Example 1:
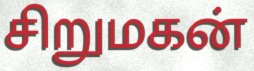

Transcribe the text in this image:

சிறுமகன்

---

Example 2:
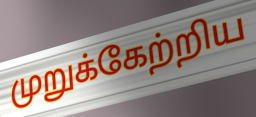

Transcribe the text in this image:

முறுக்கேற்றிய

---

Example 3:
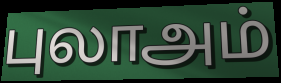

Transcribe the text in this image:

புலாஅம்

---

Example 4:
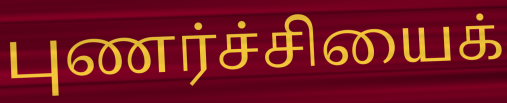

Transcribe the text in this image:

புணர்ச்சியைக்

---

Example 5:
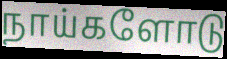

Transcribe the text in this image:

நாய்களோடு